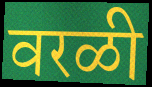
वरळी